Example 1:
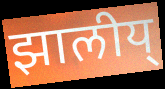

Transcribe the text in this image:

झालीय्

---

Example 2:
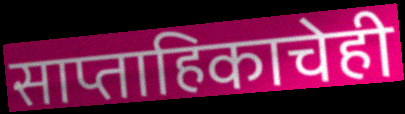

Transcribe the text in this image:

साप्ताहिकाचेही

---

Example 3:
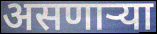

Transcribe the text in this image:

असणाऱ्या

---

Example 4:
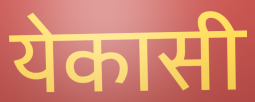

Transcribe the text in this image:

येकासी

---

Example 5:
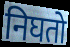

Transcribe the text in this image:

निघतो